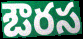
ఔరస